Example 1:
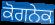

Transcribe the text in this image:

ਕੋਗਨੇਕ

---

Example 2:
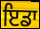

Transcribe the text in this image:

ਇਡਾ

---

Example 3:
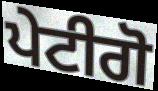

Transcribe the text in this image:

ਪੇਟੀਗੋ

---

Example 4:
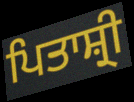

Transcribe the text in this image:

ਪਿਤਾਸ਼੍ਰੀ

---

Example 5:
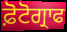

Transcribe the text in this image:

ਫ਼ੋਟੋਗ੍ਰਾਫ